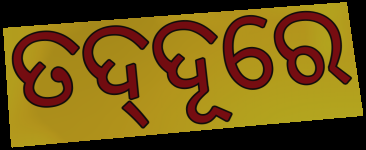
ତଦ୍‍ଦୂରେ